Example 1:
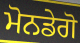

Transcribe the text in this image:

ਮੋਨਡੇਗੋ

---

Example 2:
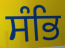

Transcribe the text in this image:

ਸੰਭਿ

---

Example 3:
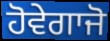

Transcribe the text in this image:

ਹੋਵੇਗਾਜੋ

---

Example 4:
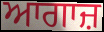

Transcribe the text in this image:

ਆਗਾਜ਼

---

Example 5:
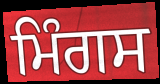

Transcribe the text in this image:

ਮਿੰਗਸ